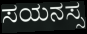
ಸಯನಸ್ಸ